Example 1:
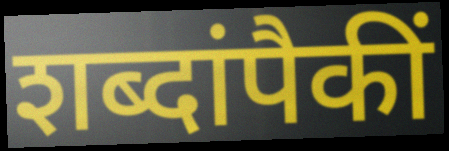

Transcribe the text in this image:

शब्दांपैकीं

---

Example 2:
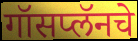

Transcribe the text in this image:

गॉसप्लॅनचे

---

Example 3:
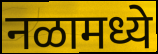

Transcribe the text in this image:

नळामध्ये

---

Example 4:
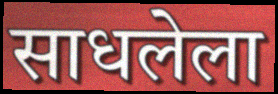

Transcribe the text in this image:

साधलेला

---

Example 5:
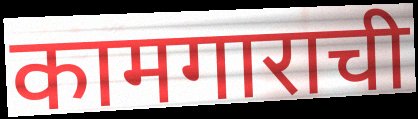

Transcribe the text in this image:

कामगाराची